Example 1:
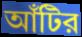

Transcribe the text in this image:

আঁটির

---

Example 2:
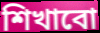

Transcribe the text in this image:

শিখাবো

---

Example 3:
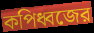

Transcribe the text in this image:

কপিধ্বজের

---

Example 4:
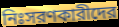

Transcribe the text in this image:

নিঃসরণকারীদের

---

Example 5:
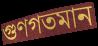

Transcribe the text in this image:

গুণগতমান